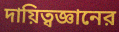
দায়িত্বজ্ঞানের